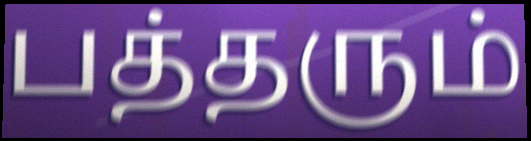
பத்தரும்